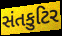
સંતકુટિર